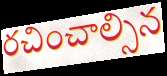
రచించాల్సిన